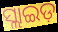
ସ୍ଲାଇଡ଼